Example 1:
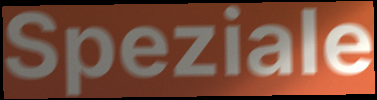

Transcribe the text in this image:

Speziale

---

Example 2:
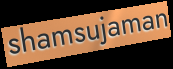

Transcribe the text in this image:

shamsujaman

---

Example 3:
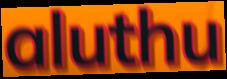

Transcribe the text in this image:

aluthu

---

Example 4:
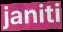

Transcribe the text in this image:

janiti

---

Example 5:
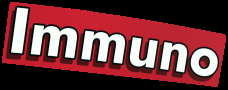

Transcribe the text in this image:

Immuno